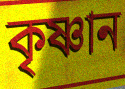
কৃষ্ণান